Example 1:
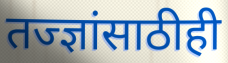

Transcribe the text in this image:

तज्ज्ञांसाठीही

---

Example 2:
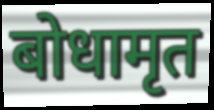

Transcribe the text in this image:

बोधामृत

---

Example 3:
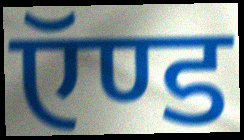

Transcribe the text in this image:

ऍण्ड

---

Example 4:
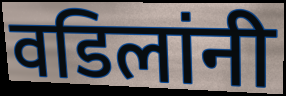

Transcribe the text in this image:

वडिलांनी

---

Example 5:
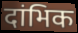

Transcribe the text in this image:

दांभिक